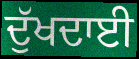
ਦੁੱਖਦਾਈ